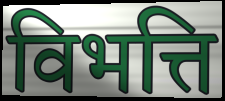
विभत्ति